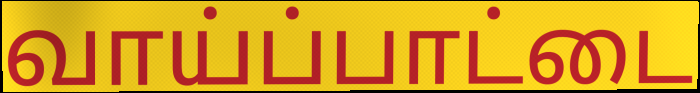
வாய்ப்பாட்டை